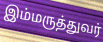
இம்மருத்துவர்